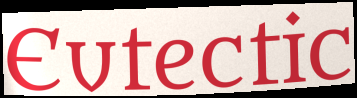
Eutectic